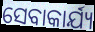
ସେବାକାର୍ଯ୍ୟ